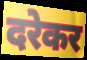
दरेकर